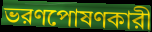
ভরণপোষণকারী